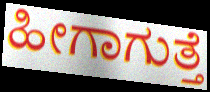
ಹೀಗಾಗುತ್ತೆ